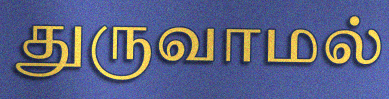
துருவாமல்